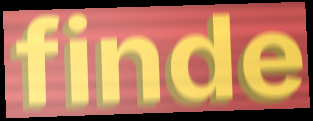
finde